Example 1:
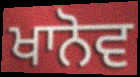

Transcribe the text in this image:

ਖਾਨੋਵ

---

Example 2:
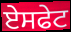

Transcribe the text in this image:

ਏਸਫੇਟ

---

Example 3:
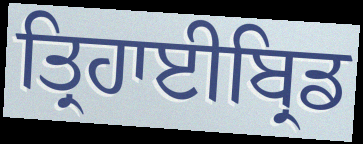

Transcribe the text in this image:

ਤ੍ਰਿਹਾਈਬ੍ਰਿਡ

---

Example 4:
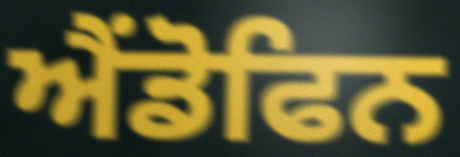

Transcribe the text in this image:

ਐਂਡੋਫਿਨ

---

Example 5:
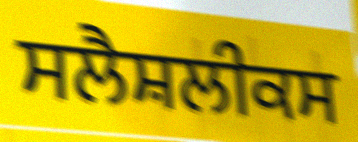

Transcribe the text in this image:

ਸਲੈਸ਼ਲੀਕਸ